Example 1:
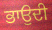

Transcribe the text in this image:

ਭਾਉਦੀ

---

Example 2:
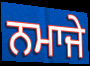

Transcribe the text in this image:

ਨਮਾਜੇ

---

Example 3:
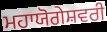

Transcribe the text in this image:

ਮਹਾਯੋਗੇਸ਼ਵਰੀ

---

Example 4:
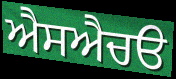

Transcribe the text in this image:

ਐਸਐਚੳ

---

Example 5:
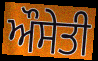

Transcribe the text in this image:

ਔਸੇਤੀ